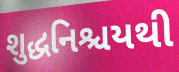
શુદ્ધનિશ્ચયથી